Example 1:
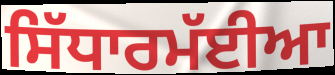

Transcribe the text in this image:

ਸਿੱਧਾਰਮੱਈਆ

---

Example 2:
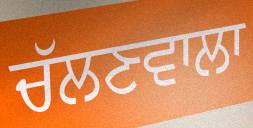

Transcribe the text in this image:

ਚੱਲਣਵਾਲਾ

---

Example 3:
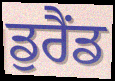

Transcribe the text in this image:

ਡੁਰੈਂਡ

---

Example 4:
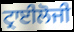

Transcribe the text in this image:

ਟ੍ਰਾਈਲੋਜੀ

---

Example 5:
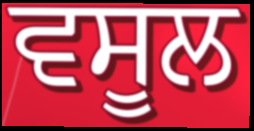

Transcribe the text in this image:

ਵਸੂਲ